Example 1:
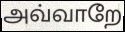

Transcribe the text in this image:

அவ்வாறே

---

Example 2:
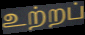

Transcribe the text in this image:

உற்றப்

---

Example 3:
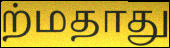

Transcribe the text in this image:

ற்மதாது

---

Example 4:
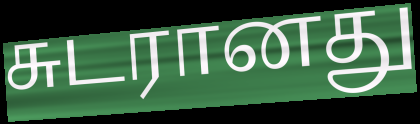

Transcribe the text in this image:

சுடரானது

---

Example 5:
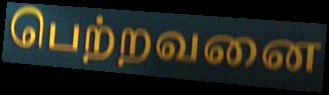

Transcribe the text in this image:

பெற்றவனை